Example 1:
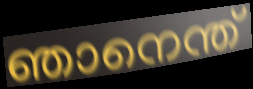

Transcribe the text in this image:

ഞാനെന്ത്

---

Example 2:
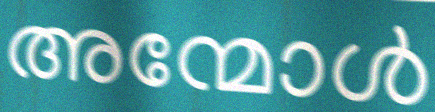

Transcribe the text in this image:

അന്മോൾ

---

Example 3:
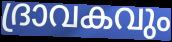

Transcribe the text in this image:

ദ്രാവകവും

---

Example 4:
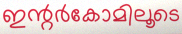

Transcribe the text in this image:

ഇന്റർകോമിലൂടെ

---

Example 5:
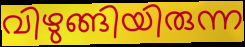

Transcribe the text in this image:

വിഴുങ്ങിയിരുന്ന